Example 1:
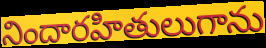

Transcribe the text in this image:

నిందారహితులుగాను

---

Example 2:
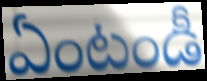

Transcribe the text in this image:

ఏంటండీ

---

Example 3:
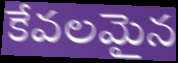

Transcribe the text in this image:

కేవలమైన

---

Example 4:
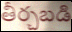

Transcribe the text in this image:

తీర్చబడి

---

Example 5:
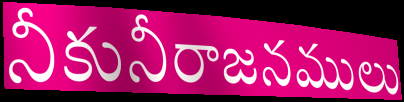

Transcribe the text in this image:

నీకునీరాజనములు